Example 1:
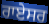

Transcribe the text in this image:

ਰਾਏਸਰ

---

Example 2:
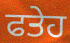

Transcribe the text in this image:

ਫਤੇਹ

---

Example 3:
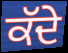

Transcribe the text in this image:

ਕੱਦੇ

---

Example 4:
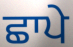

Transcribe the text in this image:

ਛਾਪੇ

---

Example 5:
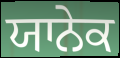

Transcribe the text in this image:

ਯਾਨੇਕ